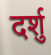
दर्शु